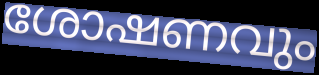
ശോഷണവും